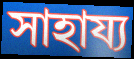
সাহায্য়